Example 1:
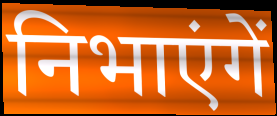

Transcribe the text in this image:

निभाएंगें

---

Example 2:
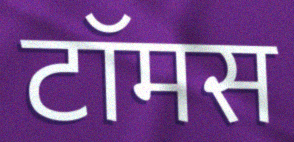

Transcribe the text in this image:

टॉमस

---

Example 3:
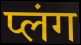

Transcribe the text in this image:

प्लंग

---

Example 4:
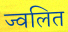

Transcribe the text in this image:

ज्वलित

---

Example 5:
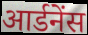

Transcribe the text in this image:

आर्डनेंस